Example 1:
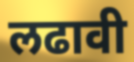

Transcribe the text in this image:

लढावी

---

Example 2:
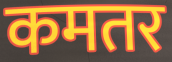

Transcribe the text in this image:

कमतर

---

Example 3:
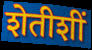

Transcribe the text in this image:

शेतीशीं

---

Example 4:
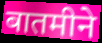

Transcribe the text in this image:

बातमीने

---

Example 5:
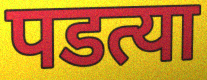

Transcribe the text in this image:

पडत्या